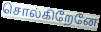
சொல்கிறேனே